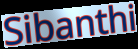
Sibanthi